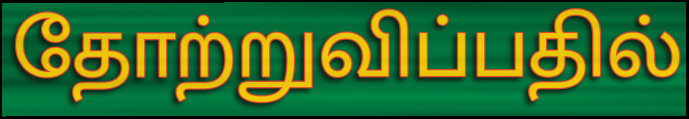
தோற்றுவிப்பதில்